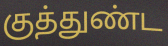
குத்துண்ட